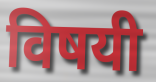
विषयी